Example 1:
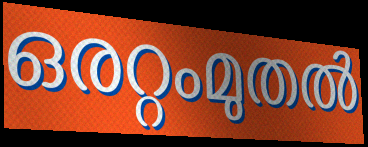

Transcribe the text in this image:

ഒരറ്റംമുതൽ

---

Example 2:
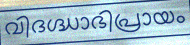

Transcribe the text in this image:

വിദഗ്ദ്ധാഭിപ്രായം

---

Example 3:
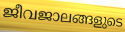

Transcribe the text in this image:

ജീവജാലങ്ങളുടെ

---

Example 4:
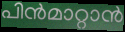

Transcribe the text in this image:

പിൻമാറ്റാൻ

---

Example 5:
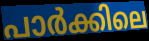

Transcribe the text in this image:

പാർക്കിലെ